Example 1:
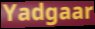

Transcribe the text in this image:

Yadgaar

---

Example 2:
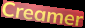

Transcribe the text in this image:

Creamer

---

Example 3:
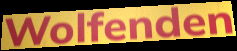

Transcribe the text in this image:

Wolfenden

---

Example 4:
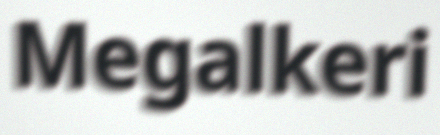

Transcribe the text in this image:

Megalkeri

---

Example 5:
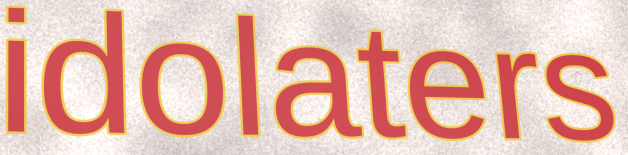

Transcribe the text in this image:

idolaters